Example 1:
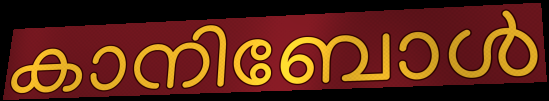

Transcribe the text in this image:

കാനിബോൾ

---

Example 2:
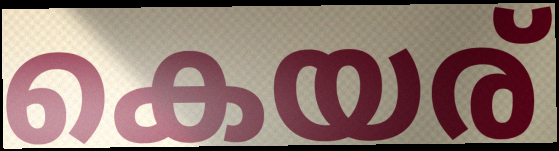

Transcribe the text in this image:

കെയര്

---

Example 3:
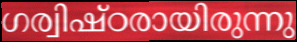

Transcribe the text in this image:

ഗര്വിഷ്ഠരായിരുന്നു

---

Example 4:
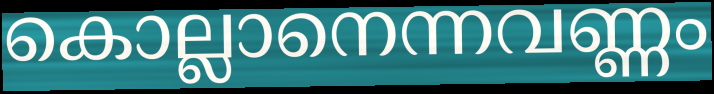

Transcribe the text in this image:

കൊല്ലാനെന്നവണ്ണം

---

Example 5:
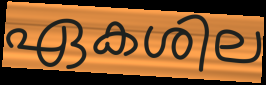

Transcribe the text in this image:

ഏകശില